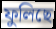
ফুলিছে